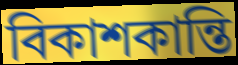
বিকাশকান্তি